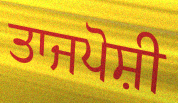
ਤਾਜਪੋਸ਼ੀ